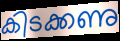
കിടക്കണു